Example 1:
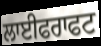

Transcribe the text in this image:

ਲਾਈਫਰਾਫਟ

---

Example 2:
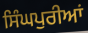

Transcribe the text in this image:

ਸਿੰਘਪੁਰੀਆਂ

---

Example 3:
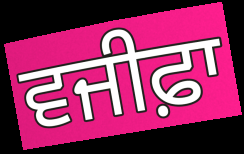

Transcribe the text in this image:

ਵਜੀਫ਼ਾ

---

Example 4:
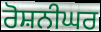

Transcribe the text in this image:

ਰੋਸ਼ਨੀਘਰ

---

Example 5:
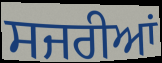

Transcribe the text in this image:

ਸਜਰੀਆਂ